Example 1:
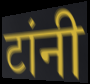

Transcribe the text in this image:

टांनी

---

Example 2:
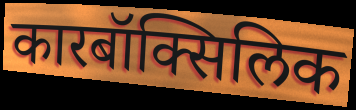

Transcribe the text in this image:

कारबॉक्सिलिक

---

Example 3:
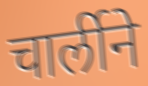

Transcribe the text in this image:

चार्लीने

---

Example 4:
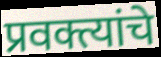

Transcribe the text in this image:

प्रवक्त्यांचे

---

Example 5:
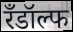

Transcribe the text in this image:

रँडॉल्फ